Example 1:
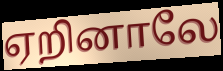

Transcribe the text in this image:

ஏறினாலே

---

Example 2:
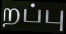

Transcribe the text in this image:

றப்பு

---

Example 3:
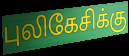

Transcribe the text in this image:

புலிகேசிக்கு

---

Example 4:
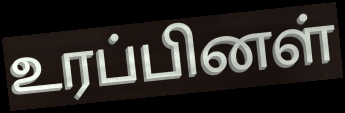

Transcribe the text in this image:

உரப்பினள்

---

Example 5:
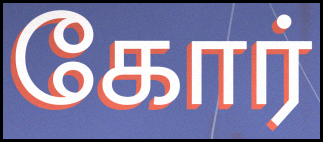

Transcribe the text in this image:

கோர்